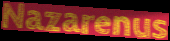
Nazarenus